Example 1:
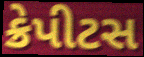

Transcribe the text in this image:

ક્રેપીટસ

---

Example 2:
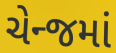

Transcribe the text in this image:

ચેન્જમાં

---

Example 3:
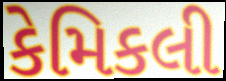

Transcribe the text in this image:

કેમિકલી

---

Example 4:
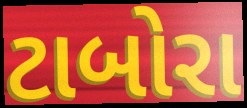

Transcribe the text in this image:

ટાબોરા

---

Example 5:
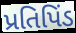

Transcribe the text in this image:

પ્રતિપિંડ